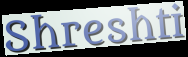
Shreshti